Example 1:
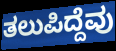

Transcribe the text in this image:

ತಲುಪಿದ್ದೆವು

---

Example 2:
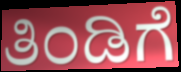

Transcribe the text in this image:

ತಿಂಡಿಗೆ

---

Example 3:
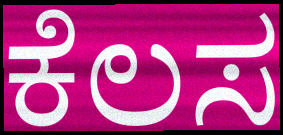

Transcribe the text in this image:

ಕೆಲಸ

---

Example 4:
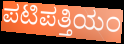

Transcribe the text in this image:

ಪಟಿಪತ್ತಿಯಂ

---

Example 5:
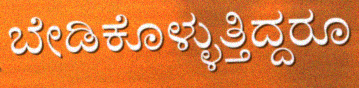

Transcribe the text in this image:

ಬೇಡಿಕೊಳ್ಳುತ್ತಿದ್ದರೂ